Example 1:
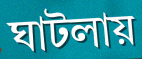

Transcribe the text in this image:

ঘাটলায়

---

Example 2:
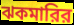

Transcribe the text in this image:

ঝকমারির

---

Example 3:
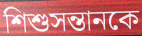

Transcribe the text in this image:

শিশুসন্তানকে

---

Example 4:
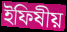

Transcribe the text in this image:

ইফিষীয়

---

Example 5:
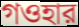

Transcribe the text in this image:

গওহার